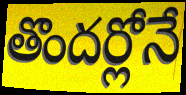
తొందర్లోనే